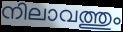
നിലാവത്തും